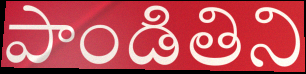
పాండితిని